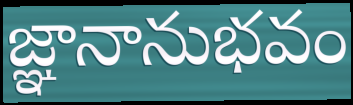
జ్ఞానానుభవం